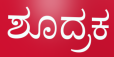
ಶೂದ್ರಕ